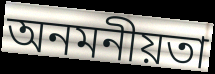
অনমনীয়তা